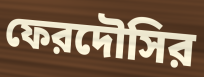
ফেরদৌসির